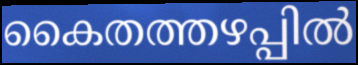
കൈതത്തഴപ്പിൽ